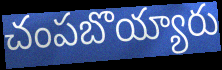
చంపబొయ్యారు